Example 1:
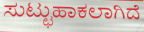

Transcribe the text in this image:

ಸುಟ್ಟುಹಾಕಲಾಗಿದೆ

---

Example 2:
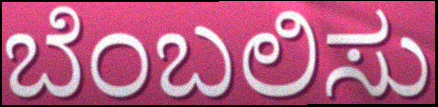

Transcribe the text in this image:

ಬೆಂಬಲಿಸು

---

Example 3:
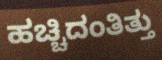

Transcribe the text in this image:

ಹಚ್ಚಿದಂತಿತ್ತು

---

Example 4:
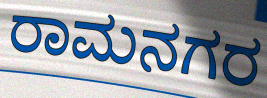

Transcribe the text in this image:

ರಾಮನಗರ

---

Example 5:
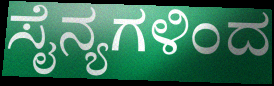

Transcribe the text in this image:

ಸೈನ್ಯಗಳಿಂದ